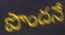
పొందనే